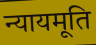
न्यायमूति